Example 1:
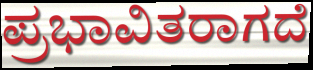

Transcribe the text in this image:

ಪ್ರಭಾವಿತರಾಗದೆ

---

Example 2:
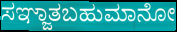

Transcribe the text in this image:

ಸಞ್ಜಾತಬಹುಮಾನೋ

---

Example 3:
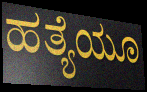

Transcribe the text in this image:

ಹತ್ಯೆಯೂ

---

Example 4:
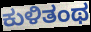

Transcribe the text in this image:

ಕುಳಿತಂಥ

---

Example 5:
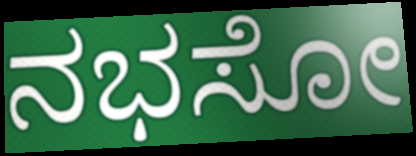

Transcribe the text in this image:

ನಭಸೋ